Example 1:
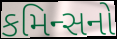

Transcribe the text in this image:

કમિન્સનો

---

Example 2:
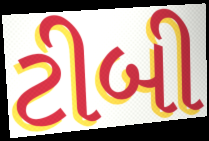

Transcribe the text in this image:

ટીબી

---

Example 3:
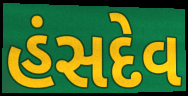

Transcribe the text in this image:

હંસદેવ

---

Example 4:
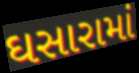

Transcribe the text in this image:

ઘસારામાં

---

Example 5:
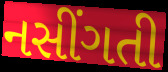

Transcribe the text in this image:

નસીંગતી